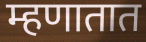
म्हणातात